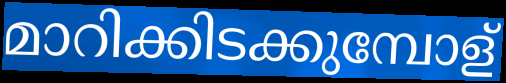
മാറിക്കിടക്കുമ്പോള്